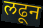
लढून